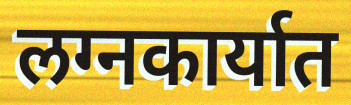
लग्नकार्यात